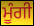
ਮੂੰਗੀ